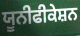
ਯੂਨੀਫੀਕੇਸ਼ਨ